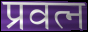
प्रवत्न